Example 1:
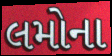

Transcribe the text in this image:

લમોના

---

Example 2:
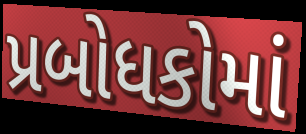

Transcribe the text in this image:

પ્રબોધકોમાં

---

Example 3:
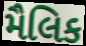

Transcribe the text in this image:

મૈલિક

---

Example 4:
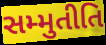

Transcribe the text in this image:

સમ્મુતીતિ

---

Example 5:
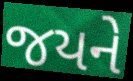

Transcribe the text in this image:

જયને